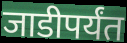
जाडीपर्यंत